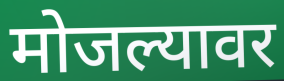
मोजल्यावर